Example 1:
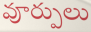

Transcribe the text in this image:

వూర్పులు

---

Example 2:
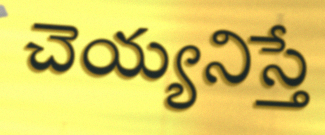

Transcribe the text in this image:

చెయ్యనిస్తే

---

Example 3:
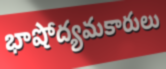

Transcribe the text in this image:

భాషోద్యమకారులు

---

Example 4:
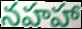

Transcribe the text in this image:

నహహా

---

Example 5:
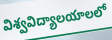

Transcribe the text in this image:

విశ్వవిద్యాలయాలలో